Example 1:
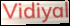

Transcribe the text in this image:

Vidiyal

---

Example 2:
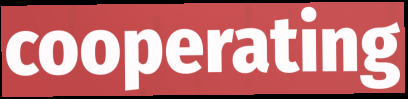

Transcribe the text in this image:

cooperating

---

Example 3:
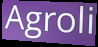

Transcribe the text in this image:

Agroli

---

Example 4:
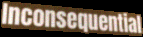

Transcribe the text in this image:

Inconsequential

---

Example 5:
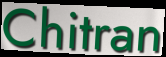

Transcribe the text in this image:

Chitran